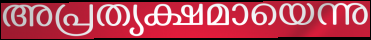
അപ്രത്യക്ഷമായെന്നു